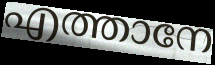
എത്താനേ